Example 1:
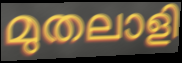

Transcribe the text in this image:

മുതലാളി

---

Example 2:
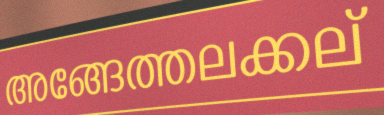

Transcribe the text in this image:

അങ്ങേത്തലക്കല്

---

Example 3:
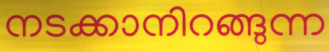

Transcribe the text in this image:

നടക്കാനിറങ്ങുന്ന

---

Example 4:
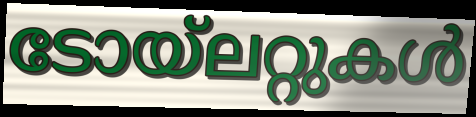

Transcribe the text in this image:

ടോയ്ലറ്റുകൾ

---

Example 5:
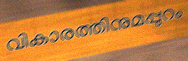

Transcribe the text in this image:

വികാരത്തിനുമപ്പുറം